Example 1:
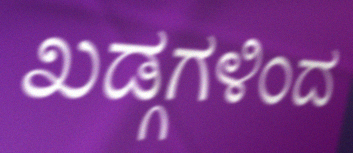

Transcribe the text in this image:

ಖಡ್ಗಗಳಿಂದ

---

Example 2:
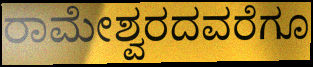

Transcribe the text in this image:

ರಾಮೇಶ್ವರದವರೆಗೂ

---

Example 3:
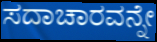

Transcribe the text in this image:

ಸದಾಚಾರವನ್ನೇ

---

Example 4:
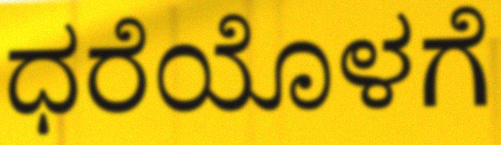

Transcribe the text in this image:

ಧರೆಯೊಳಗೆ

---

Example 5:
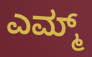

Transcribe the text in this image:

ಎಮ್ಮ್